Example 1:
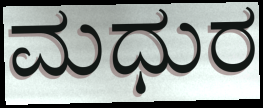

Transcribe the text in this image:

ಮಧುರ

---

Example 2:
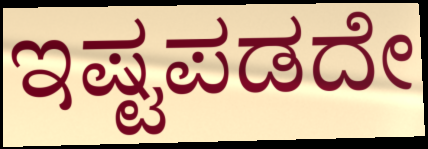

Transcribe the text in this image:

ಇಷ್ಟಪಡದೇ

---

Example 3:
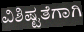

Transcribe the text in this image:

ವಿಶಿಷ್ಟತೆಗಾಗಿ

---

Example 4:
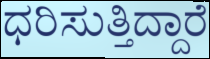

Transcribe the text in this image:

ಧರಿಸುತ್ತಿದ್ದಾರೆ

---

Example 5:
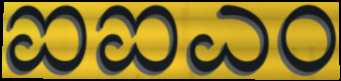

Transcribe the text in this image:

ಐಐಎಂ